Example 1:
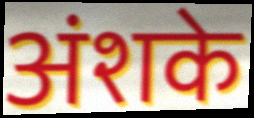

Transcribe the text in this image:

अंशके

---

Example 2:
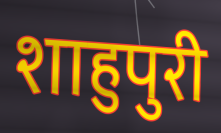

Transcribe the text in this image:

शाहुपुरी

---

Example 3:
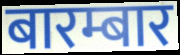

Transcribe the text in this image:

बारम्‍बार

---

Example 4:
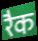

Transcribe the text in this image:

रैक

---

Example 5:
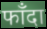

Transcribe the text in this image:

फाँदा